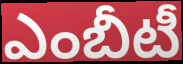
ఎంబీటీ